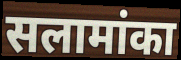
सलामांका